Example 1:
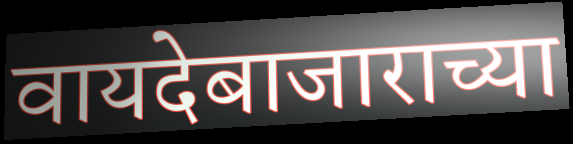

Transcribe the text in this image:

वायदेबाजाराच्या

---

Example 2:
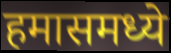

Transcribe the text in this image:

हमासमध्ये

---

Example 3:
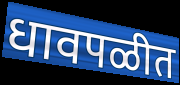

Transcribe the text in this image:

धावपळीत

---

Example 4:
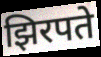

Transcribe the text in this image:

झिरपते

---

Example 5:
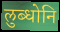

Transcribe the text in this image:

लुब्धोनि